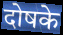
दोषके